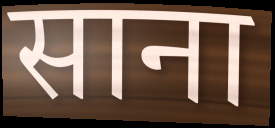
साना